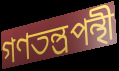
গণতন্ত্রপন্থী